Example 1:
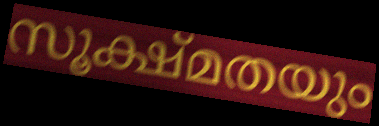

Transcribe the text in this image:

സൂക്ഷ്മതയും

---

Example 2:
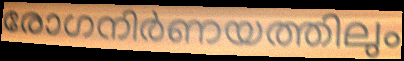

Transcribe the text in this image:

രോഗനിർണയത്തിലും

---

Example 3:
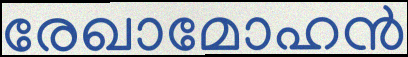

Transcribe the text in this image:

രേഖാമോഹൻ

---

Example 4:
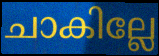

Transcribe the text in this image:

ചാകില്ലേ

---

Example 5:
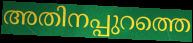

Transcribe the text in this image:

അതിനപ്പുറത്തെ